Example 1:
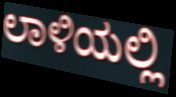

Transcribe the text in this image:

ಲಾಳಿಯಲ್ಲಿ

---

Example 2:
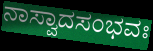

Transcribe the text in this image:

ನಾಸ್ವಾದಸಂಭವಃ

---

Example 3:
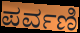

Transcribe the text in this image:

ಪರ್ವಣಿ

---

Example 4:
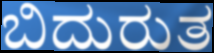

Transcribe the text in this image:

ಬಿದುರುತ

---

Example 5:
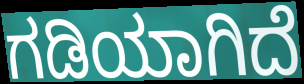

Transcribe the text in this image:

ಗಡಿಯಾಗಿದೆ